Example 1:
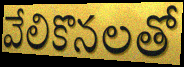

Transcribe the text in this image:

వేలికొనలతో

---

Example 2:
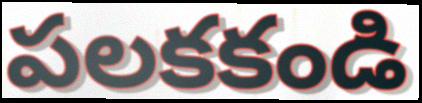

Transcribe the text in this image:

పలకకండి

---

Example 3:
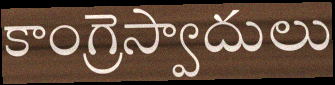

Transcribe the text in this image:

కాంగ్రెస్వాదులు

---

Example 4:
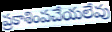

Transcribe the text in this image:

ప్రకాశింపచేయలేవు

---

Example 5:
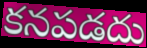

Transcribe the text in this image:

కనపడదు